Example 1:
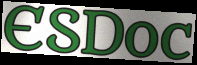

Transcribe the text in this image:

ESDoc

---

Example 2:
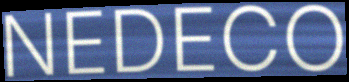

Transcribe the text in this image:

NEDECO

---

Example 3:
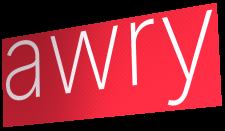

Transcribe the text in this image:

awry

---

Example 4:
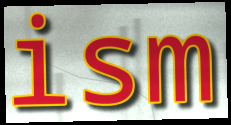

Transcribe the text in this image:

ism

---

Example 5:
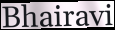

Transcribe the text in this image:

Bhairavi